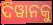
ଦିୱାନକୁ